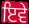
ਇਵੇ